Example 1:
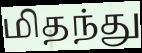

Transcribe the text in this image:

மிதந்து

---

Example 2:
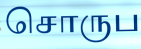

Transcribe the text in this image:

சொருப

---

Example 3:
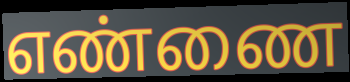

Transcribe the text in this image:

எண்ணை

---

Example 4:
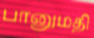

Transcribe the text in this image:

பானுமதி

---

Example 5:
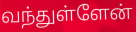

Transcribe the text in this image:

வந்துள்ளேன்